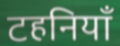
टहनियाँ